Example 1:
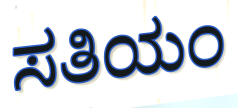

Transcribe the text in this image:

ಸತಿಯಂ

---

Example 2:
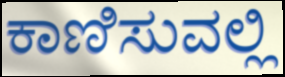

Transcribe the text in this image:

ಕಾಣಿಸುವಲ್ಲಿ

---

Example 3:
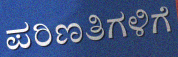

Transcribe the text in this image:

ಪರಿಣತಿಗಳಿಗೆ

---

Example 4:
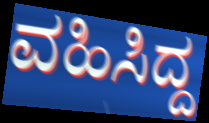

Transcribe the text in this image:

ವಹಿಸಿದ್ದ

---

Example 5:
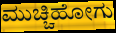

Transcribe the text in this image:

ಮುಚ್ಚಿಹೋಗು